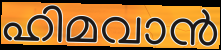
ഹിമവാൻ